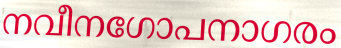
നവീനഗോപനാഗരം